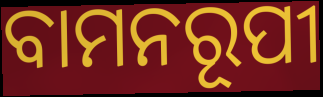
ବାମନରୂପୀ